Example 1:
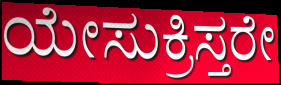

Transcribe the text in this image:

ಯೇಸುಕ್ರಿಸ್ತರೇ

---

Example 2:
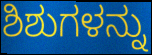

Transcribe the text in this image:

ಶಿಶುಗಳನ್ನು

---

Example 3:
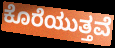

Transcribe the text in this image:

ಕೊರೆಯುತ್ತವೆ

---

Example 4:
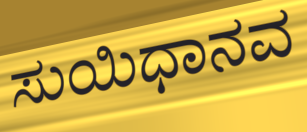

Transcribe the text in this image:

ಸುಯಿಧಾನವ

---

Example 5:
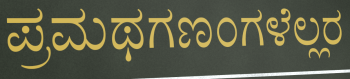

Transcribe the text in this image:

ಪ್ರಮಥಗಣಂಗಳೆಲ್ಲರ